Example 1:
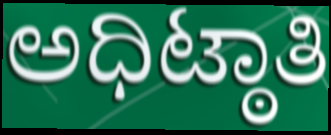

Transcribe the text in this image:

ಅಧಿಟ್ಠಾತಿ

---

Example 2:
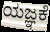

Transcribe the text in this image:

ಯಜ್ಞಕೆ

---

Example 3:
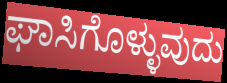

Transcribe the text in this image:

ಘಾಸಿಗೊಳ್ಳುವುದು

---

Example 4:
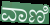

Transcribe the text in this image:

ವಾಣಿ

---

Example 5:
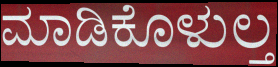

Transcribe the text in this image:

ಮಾಡಿಕೊಳುಲ್ತ